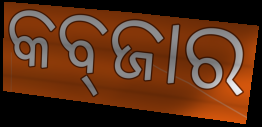
କବ୍‍ଜାର